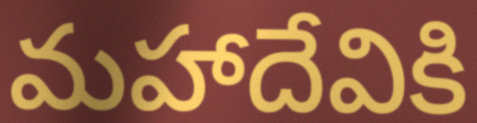
మహాదేవికి